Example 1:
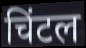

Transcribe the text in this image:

चिंटल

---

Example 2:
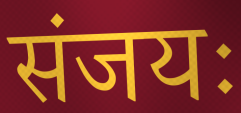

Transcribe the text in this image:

संजयः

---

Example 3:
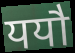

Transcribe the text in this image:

ययौ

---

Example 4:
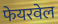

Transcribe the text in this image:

फेयरवेल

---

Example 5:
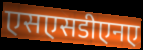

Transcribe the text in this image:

एसएसडीएनए